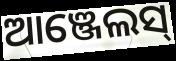
ଆଞ୍ଜେଲସ୍